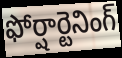
ఫోర్షార్టెనింగ్